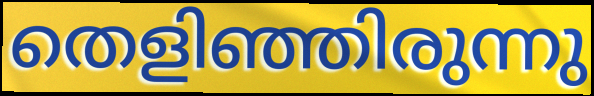
തെളിഞ്ഞിരുന്നു